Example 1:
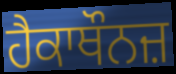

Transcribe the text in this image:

ਹੈਕਾਥੌਨਜ਼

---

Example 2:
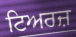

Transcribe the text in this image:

ਟਿਅਰਜ਼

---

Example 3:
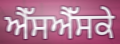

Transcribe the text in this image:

ਐੱਸਐੱਸਕੇ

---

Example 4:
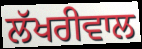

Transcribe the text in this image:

ਲੱਖਰੀਵਾਲ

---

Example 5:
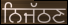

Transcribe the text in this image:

ਨਿਜੱਠਣ